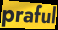
praful